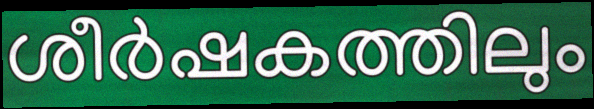
ശീർഷകത്തിലും